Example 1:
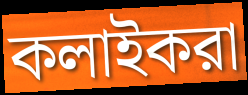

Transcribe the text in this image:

কলাইকরা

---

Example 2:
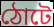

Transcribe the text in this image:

ঠোটে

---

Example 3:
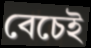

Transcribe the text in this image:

বেচেই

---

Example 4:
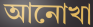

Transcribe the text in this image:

আনোখা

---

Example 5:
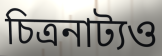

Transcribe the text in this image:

চিত্রনাট্যও